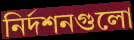
নির্দশনগুলো